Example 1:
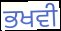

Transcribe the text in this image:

ਭਖਵੀ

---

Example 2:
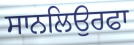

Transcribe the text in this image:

ਸਾਨਲਿਉਰਫਾ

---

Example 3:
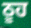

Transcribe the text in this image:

ਠੂਹ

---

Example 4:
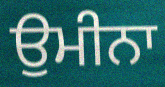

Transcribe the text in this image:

ਉਮੀਨਾ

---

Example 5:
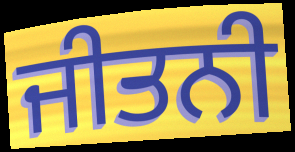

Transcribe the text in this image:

ਜੀਤਨੀ